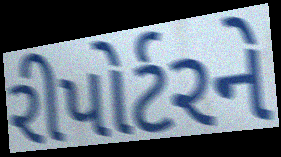
રીપોર્ટરને